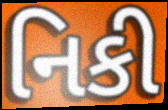
નિકી